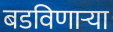
बडविणाऱ्या